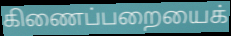
கிணைப்பறையைக்